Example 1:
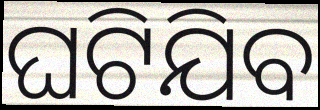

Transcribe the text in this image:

ଘଟିଯିବ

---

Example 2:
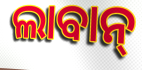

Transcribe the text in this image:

ଲାବାନ୍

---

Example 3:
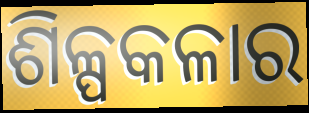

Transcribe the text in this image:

ଶିଳ୍ପକଳାର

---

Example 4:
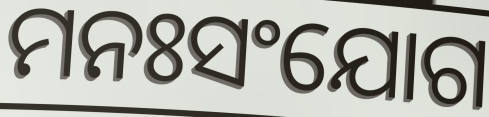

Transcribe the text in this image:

ମନଃସଂଯୋଗ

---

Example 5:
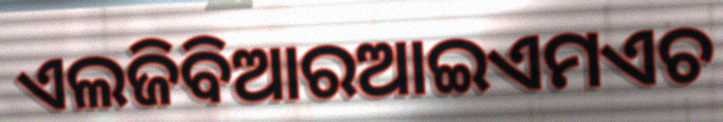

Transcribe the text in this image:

ଏଲଜିବିଆରଆଇଏମଏଚ